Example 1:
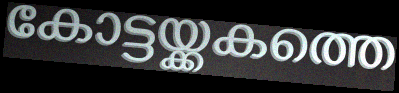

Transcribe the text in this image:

കോട്ടയ്ക്കകത്തെ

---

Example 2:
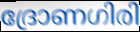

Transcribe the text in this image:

ദ്രോണഗിരി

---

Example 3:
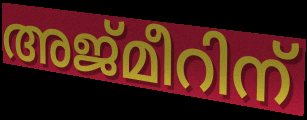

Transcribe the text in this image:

അജ്മീറിന്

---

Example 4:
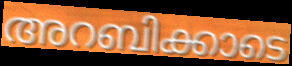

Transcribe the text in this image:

അറബിക്കാടെ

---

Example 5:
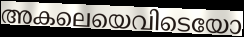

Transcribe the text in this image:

അകലെയെവിടെയോ